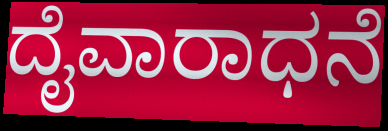
ದೈವಾರಾಧನೆ